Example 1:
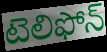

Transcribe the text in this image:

టెలిఫోన్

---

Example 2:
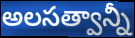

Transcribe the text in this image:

అలసత్వాన్నీ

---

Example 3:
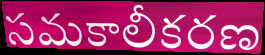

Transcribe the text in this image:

సమకాలీకరణ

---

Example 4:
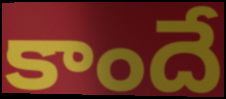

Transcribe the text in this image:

కాందే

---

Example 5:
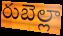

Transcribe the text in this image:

రుబెల్లా